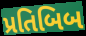
પ્રતિબિબ